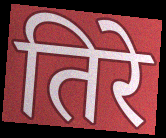
तिरे